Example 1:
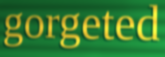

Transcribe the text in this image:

gorgeted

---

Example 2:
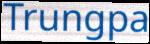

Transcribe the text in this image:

Trungpa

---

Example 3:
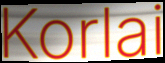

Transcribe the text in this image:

Korlai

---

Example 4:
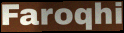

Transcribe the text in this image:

Faroqhi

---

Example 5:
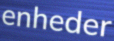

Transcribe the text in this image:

enheder